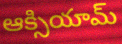
ఆక్సియామ్